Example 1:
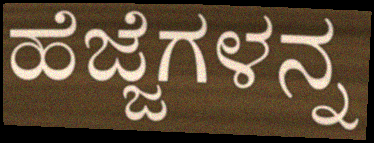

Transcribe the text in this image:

ಹೆಜ್ಜೆಗಳನ್ನ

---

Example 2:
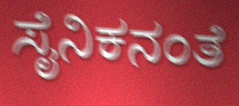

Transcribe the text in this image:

ಸೈನಿಕನಂತೆ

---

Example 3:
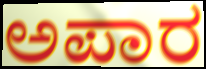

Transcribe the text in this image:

ಅಪಾರ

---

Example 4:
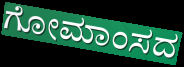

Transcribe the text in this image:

ಗೋಮಾಂಸದ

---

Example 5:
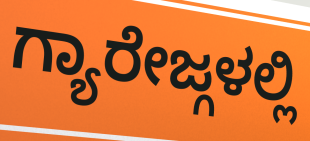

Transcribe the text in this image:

ಗ್ಯಾರೇಜ್ಗಳಲ್ಲಿ